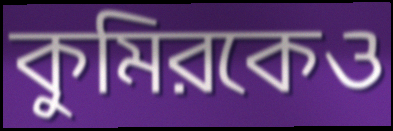
কুমিরকেও